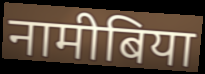
नामीबिया